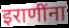
इराणींना